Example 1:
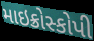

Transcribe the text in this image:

માઇક્રોસ્કોપી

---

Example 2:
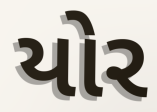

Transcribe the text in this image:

યોર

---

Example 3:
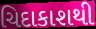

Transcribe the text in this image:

ચિદાકાશથી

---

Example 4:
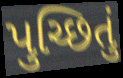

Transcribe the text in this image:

પુચ્છિતું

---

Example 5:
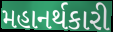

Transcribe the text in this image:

મહાનર્થકારી